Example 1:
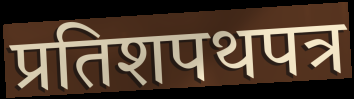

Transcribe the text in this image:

प्रतिशपथपत्र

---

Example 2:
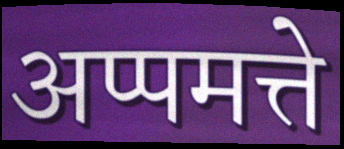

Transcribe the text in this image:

अप्पमत्ते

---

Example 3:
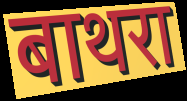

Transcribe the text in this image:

बाथरा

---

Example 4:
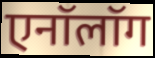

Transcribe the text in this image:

एनॉलॉग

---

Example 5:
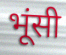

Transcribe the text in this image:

भूंसी